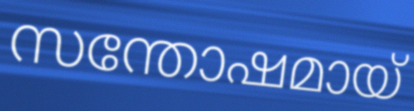
സന്തോഷമായ്